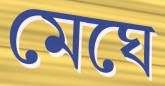
মেঘে